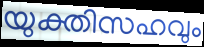
യുക്തിസഹവും